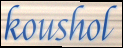
koushol